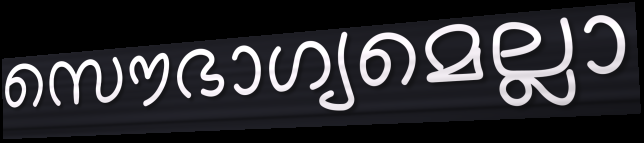
സൌഭാഗ്യമെല്ലാ